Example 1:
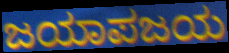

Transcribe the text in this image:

ಜಯಾಪಜಯ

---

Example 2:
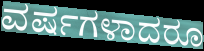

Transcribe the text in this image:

ವರ್ಷಗಳಾದರೂ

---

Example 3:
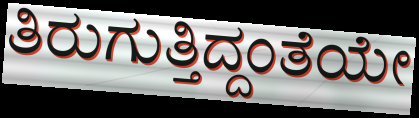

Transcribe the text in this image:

ತಿರುಗುತ್ತಿದ್ದಂತೆಯೇ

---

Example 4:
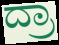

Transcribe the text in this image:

ದ್ರಾ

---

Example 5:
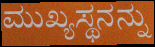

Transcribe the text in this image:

ಮುಖ್ಯಸ್ಥನನ್ನು